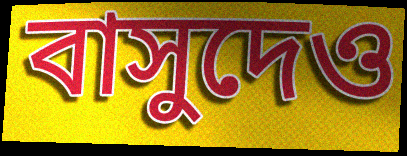
বাসুদেও